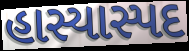
હાસ્યાસ્પદ